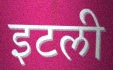
इटली